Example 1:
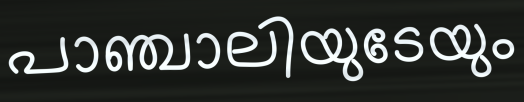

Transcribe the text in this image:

പാഞ്ചാലിയുടേയും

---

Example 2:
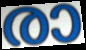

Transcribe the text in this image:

രാ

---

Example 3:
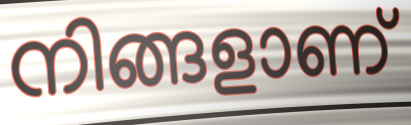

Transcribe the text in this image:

നിങ്ങളാണ്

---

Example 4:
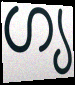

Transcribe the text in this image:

ഗ്യ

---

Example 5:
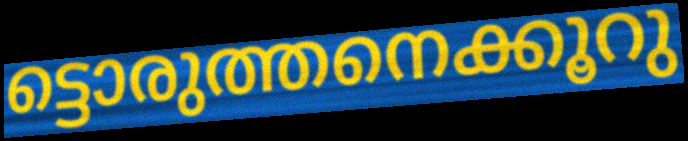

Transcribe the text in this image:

ട്ടൊരുത്തനെക്കൂറു